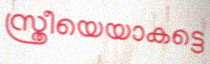
സ്ത്രീയെയാകട്ടെ